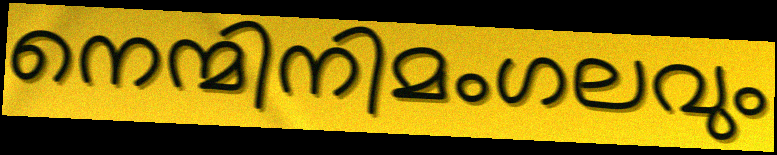
നെന്മിനിമംഗലവും